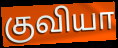
குவியா